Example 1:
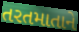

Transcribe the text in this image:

તરતમાતાને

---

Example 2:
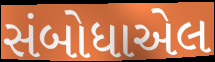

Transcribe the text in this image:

સંબોધાએલ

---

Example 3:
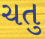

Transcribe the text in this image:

ચતુ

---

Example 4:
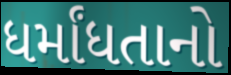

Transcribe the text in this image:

ધર્માંધતાનો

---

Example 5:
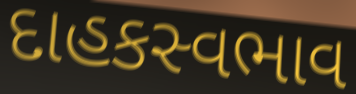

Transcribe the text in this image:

દાહકસ્વભાવ